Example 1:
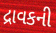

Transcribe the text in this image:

દ્રાવકની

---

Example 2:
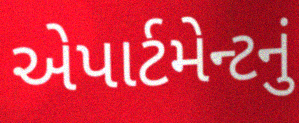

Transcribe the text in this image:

એપાર્ટમેન્ટનું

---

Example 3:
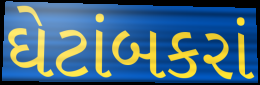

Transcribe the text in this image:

ઘેટાંબકરાં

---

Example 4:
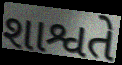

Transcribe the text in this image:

શાશ્વતે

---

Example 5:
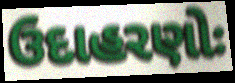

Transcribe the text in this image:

ઉદાહરણોઃ